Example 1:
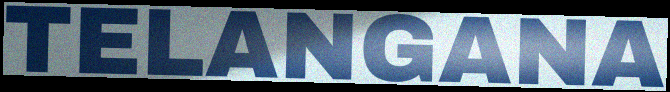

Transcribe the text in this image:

TELANGANA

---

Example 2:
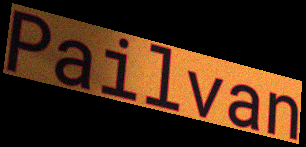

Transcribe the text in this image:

Pailvan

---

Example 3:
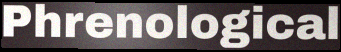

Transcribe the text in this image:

Phrenological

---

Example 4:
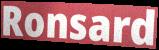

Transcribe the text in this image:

Ronsard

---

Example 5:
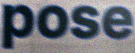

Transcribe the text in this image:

pose